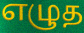
எழுத